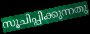
സൂചിപ്പിക്കുന്നതു